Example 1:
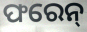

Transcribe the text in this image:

ଫରେନ୍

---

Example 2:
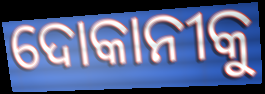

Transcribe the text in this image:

ଦୋକାନୀକୁ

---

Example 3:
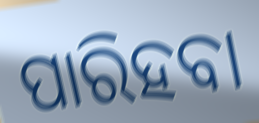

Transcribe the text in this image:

ପାରିହବା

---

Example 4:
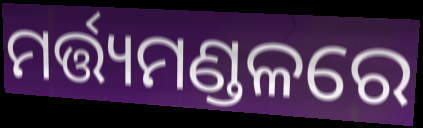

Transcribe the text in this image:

ମର୍ତ୍ତ୍ୟମଣ୍ଡଳରେ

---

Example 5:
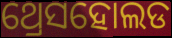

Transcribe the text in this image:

ଥ୍ରେସହୋଲଡ